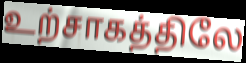
உற்சாகத்திலே